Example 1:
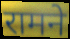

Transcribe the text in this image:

रामने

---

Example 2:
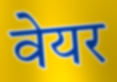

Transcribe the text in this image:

वेयर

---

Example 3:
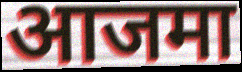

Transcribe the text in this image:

आजमा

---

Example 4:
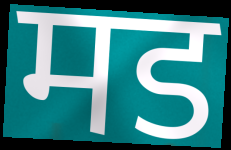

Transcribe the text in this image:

मड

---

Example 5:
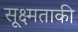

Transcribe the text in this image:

सूक्ष्मताकी